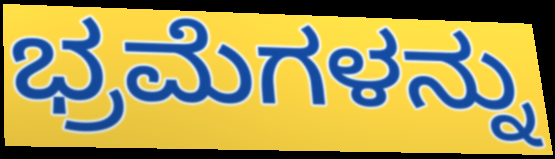
ಭ್ರಮೆಗಳನ್ನು